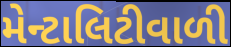
મેન્ટાલિટીવાળી